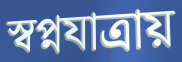
স্বপ্নযাত্রায়